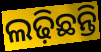
ଲଢ଼ିଛନ୍ତି